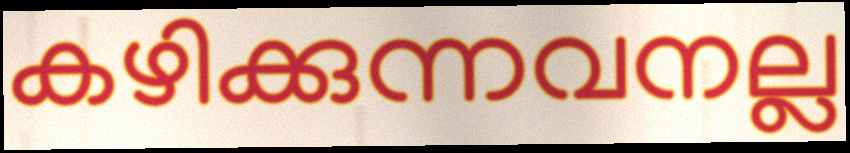
കഴിക്കുന്നവനല്ല